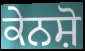
ਕੇਨਸ਼ੋ